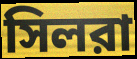
সিলরা